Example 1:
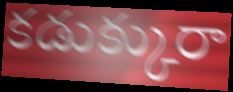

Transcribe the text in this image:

కడుక్కురా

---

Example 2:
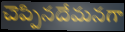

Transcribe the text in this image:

చెప్పినదేమనగా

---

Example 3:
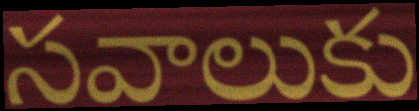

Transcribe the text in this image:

సవాలుకు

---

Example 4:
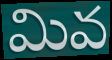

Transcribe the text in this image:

మివ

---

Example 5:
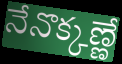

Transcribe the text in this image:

నేనొక్కణ్ణే